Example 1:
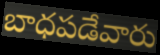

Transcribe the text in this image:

బాధపడేవారు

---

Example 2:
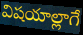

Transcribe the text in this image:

విషయాల్లాగే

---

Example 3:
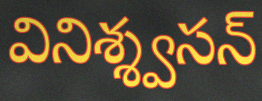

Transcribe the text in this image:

వినిశ్శ్వసన్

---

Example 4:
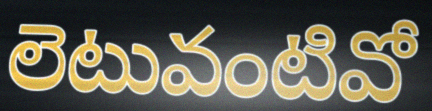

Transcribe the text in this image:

లెటువంటివో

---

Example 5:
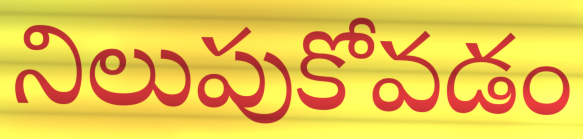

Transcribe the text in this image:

నిలుపుకోవడం